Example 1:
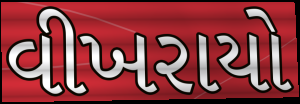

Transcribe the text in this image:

વીખરાયો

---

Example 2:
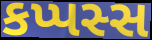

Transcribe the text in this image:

કપ્પસ્સ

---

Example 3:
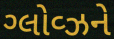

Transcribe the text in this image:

ગ્લોવ્ઝને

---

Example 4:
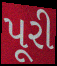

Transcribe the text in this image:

પૂરી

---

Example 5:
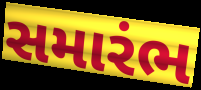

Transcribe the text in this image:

સમારંભ